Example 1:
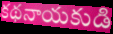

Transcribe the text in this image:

కథనాయకుడి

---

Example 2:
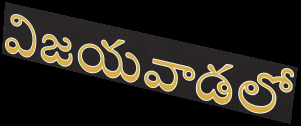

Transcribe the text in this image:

విజయవాడలో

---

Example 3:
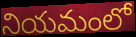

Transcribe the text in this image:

నియమంలో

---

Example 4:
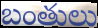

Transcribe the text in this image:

బంతులు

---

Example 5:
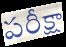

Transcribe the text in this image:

పరీక్షా